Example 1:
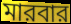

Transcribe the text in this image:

মারবার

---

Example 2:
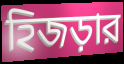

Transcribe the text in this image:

হিজড়ার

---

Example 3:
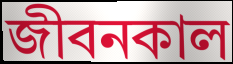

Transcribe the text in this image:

জীবনকাল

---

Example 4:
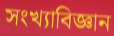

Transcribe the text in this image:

সংখ্যাবিজ্ঞান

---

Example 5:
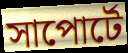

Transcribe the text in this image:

সাপোর্টে